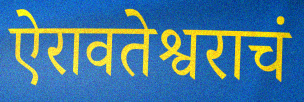
ऐरावतेश्वराचं